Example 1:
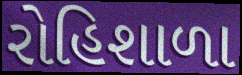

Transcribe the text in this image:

રોહિશાળા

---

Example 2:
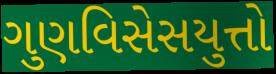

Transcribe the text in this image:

ગુણવિસેસયુત્તો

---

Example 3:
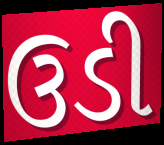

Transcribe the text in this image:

ઉડી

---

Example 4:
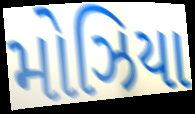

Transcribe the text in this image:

મોઝિયા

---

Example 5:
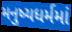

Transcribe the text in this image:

મનુષ્યધર્મમાં